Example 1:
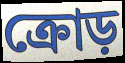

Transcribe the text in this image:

ক্রোড়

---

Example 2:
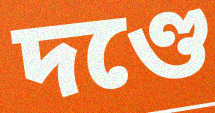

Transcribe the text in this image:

দণ্ডে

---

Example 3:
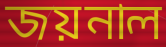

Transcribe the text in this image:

জয়নাল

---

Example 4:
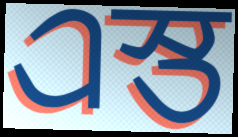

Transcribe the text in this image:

এস্ত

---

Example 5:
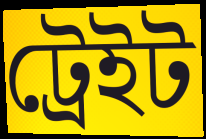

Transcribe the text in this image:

ট্রেইট